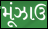
મૂંઝાઉ